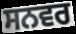
ਸਨਵਰ